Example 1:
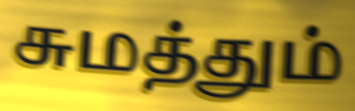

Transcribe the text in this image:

சுமத்தும்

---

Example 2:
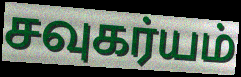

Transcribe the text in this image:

சவுகர்யம்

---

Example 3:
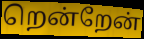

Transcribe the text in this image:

றென்றேன்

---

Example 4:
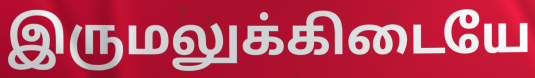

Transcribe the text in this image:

இருமலுக்கிடையே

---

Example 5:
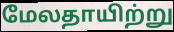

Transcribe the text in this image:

மேலதாயிற்று